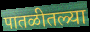
पातळीतल्या